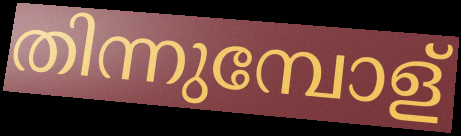
തിന്നുമ്പോള്